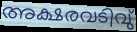
അക്ഷരവടിവു്